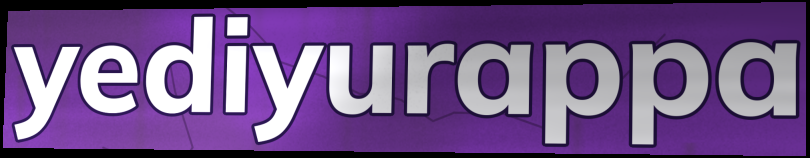
yediyurappa